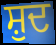
ਸ਼ੁਦ